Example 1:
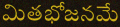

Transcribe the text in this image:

మితభోజనమే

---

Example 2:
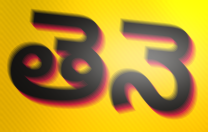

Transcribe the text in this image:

తెనె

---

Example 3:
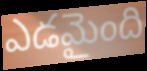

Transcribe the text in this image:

ఎడమైంది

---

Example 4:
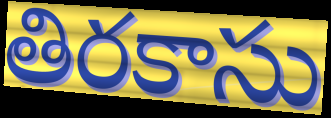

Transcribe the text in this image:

తిరకాసు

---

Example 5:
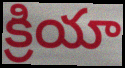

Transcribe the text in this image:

క్రియా